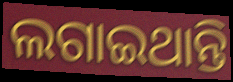
ଲଗାଇଥାନ୍ତି